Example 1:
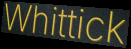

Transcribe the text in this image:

Whittick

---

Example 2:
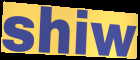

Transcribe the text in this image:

shiw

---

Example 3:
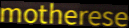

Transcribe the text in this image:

motherese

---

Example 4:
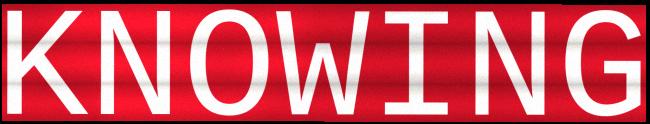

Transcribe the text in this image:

KNOWING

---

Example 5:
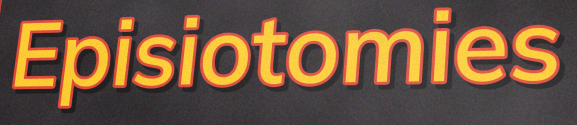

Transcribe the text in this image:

Episiotomies